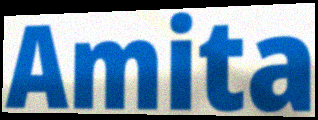
Amita